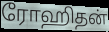
ரோஹிதன்